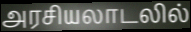
அரசியலாடலில்